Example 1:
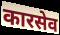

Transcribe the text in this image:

कारसेव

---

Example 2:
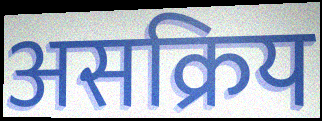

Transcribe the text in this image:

असक्रिय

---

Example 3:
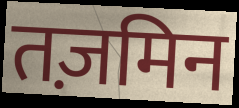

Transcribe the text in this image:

तज़मिन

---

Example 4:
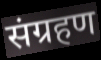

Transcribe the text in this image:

संग्रहण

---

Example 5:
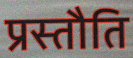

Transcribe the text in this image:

प्रस्तौति